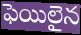
ఫెయిలైన